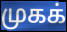
முகக்